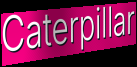
Caterpillar